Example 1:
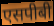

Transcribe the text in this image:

एसपीबी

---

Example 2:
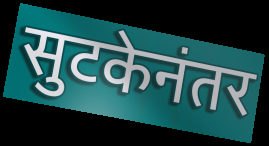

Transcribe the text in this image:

सुटकेनंतर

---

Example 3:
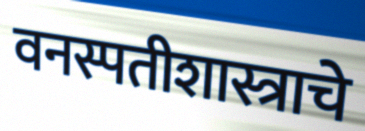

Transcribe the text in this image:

वनस्पतीशास्त्राचे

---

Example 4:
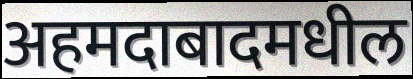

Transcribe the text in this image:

अहमदाबादमधील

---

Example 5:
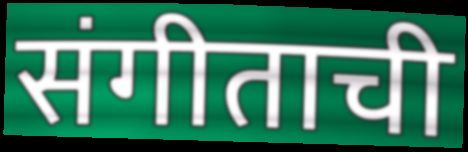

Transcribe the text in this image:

संगीताची